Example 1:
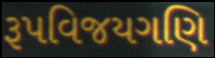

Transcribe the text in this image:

રૂપવિજયગણિ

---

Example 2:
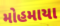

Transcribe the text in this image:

મોહમાયા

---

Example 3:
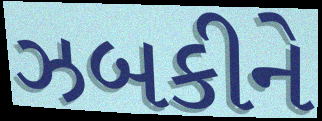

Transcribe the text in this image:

ઝબકીને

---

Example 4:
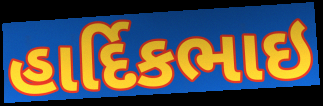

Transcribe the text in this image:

હાર્દિકભાઇ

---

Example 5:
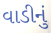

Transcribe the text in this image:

વાડીનું